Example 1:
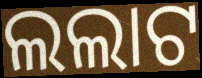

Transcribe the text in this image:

ଲଲାଟ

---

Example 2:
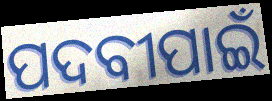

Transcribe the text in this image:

ପଦବୀପାଇଁ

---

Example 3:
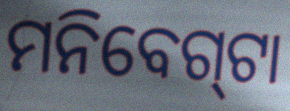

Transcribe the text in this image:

ମନିବେଗ୍‍ଟା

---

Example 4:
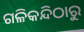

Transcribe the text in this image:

ଗଳିକନ୍ଦିଠାରୁ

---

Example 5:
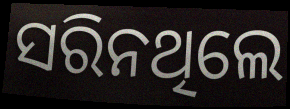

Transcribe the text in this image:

ସରିନଥିଲେ